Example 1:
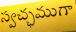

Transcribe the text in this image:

స్వచ్ఛముగా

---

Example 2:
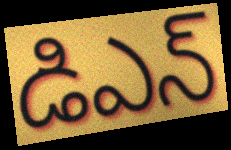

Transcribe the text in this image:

డిఎన్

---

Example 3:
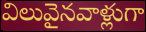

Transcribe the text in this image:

విలువైనవాళ్లుగా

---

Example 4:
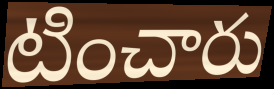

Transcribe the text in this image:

టించారు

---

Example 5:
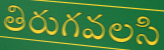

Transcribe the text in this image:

తిరుగవలసి